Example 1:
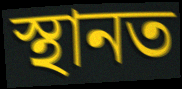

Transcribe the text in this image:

স্থানত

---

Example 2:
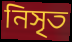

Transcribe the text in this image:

নিসৃত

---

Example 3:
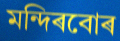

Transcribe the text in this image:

মন্দিৰবোৰ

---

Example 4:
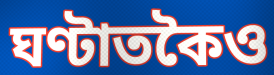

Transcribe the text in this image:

ঘণ্টাতকৈও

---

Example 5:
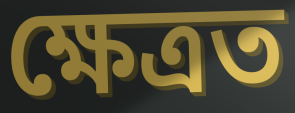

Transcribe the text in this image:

ক্ষেত্ৰত